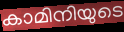
കാമിനിയുടെ